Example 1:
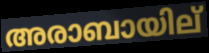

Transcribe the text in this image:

അരാബായില്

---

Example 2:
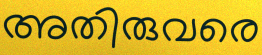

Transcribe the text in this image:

അതിരുവരെ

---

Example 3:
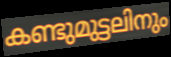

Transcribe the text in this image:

കണ്ടുമുട്ടലിനും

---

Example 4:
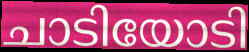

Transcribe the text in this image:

ചാടിയോടി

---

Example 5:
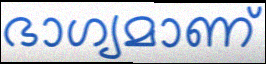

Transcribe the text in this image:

ഭാഗ്യമാണ്